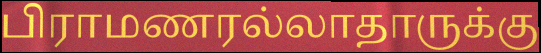
பிராமணரல்லாதாருக்கு